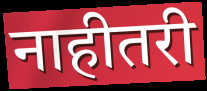
नाहीतरी